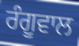
ਰੰਗੂਵਾਲ